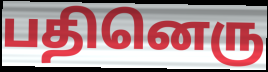
பதினெரு